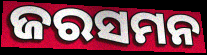
ଜରସମନ